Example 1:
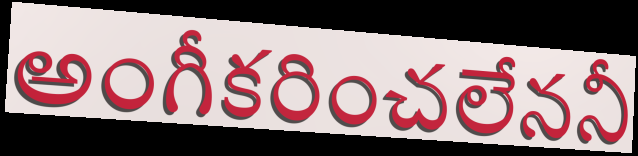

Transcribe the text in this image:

అంగీకరించలేననీ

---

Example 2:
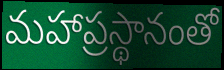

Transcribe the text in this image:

మహాప్రస్థానంతో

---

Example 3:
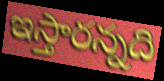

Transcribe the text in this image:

ఇస్తారన్నది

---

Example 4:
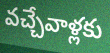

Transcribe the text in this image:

వచ్చేవాళ్లకు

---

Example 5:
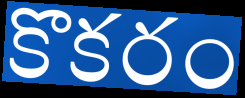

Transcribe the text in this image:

కొకరం